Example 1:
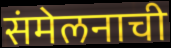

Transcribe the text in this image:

संमेलनाची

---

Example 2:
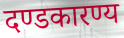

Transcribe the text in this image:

दण्डकारण्य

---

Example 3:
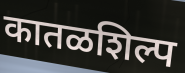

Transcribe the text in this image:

कातळशिल्प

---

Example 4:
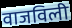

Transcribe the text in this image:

वाजविली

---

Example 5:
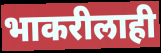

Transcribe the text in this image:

भाकरीलाही